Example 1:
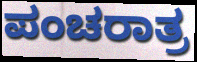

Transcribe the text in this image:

ಪಂಚರಾತ್ರ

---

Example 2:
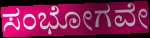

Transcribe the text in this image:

ಸಂಭೋಗವೇ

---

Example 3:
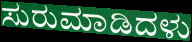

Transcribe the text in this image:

ಸುರುಮಾಡಿದಳು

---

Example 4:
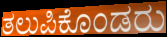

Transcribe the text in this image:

ತಲುಪಿಕೊಂಡರು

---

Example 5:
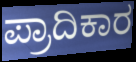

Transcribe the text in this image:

ಪ್ರಾದಿಕಾರ